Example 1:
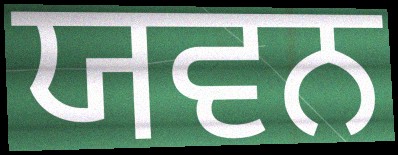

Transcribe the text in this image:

ਯਵਨ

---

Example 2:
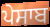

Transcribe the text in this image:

ਪੇਸਾਬ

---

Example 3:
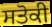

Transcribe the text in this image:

ਸਤੋਕੀ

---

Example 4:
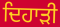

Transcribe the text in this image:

ਦਿਹਾੜੀ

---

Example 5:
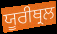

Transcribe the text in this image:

ਯੂਰੀਥ੍ਰਲ